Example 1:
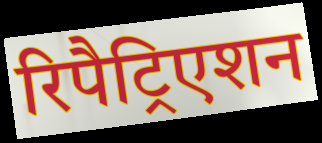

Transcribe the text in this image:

रिपैट्रिएशन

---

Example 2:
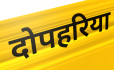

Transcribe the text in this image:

दोपहरिया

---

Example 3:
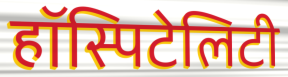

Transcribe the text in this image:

हॉस्पिटेलिटी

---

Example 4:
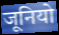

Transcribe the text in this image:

जूनियो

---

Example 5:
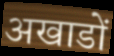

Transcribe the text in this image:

अखाडों